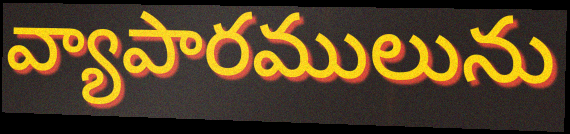
వ్యాపారములును